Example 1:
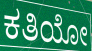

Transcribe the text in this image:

ಕತಿಯೋ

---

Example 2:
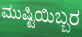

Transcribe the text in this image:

ಮುಷ್ಟಿಯಿಬ್ಬರ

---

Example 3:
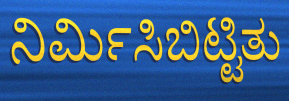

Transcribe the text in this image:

ನಿರ್ಮಿಸಿಬಿಟ್ಟಿತು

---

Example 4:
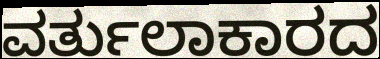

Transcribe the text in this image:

ವರ್ತುಲಾಕಾರದ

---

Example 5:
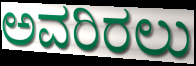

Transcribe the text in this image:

ಅವರಿರಲು